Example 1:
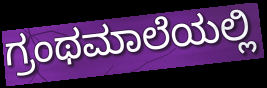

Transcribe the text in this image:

ಗ್ರಂಥಮಾಲೆಯಲ್ಲಿ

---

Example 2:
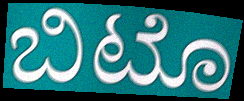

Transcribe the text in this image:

ಬಿಟೊ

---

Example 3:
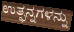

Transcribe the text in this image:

ಉತ್ಫನ್ನಗಳನ್ನು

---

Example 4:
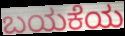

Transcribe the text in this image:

ಬಯಕೆಯ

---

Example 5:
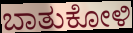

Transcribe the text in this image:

ಬಾತುಕೋಳಿ